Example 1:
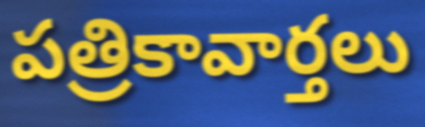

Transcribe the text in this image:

పత్రికావార్తలు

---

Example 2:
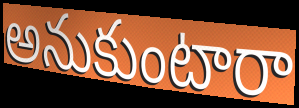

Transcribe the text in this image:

అనుకుంటారా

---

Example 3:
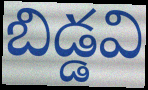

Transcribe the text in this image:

బిడ్డవి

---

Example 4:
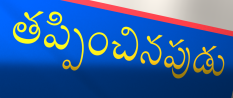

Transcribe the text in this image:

తప్పించినపుడు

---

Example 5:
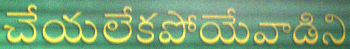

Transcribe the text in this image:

చేయలేకపోయేవాడిని